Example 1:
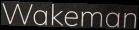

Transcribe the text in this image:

Wakeman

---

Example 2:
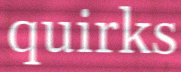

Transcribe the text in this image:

quirks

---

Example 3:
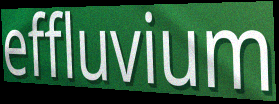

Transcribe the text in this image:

effluvium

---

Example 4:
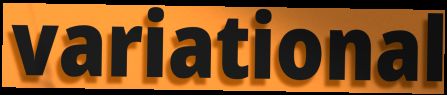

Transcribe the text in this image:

variational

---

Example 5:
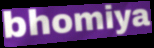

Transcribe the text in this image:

bhomiya